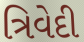
ત્રિવેદી